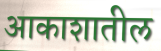
आकाशातील